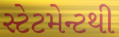
સ્ટેટમેન્ટથી